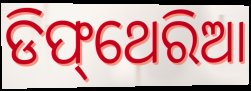
ଡିଫ୍‌ଥେରିଆ